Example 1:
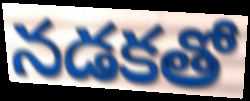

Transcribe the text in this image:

నడకతో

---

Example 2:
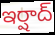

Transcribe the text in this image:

ఇర్షాద్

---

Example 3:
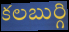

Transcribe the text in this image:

కలబుర్గి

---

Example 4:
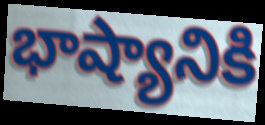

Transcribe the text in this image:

భాష్యానికి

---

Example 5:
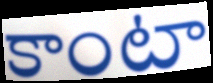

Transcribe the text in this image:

కాంటా